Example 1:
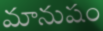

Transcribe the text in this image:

మానుషం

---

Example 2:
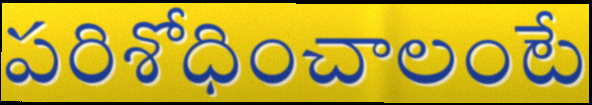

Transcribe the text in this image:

పరిశోధించాలంటే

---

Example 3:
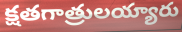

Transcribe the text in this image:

క్షతగాత్రులయ్యారు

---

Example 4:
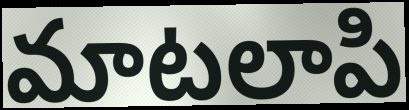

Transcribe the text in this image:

మాటలాపి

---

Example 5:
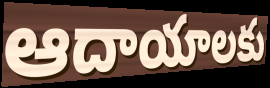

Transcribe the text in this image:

ఆదాయాలకు